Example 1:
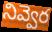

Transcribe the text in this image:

నివ్వెర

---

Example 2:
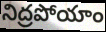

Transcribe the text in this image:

నిద్రపోయాం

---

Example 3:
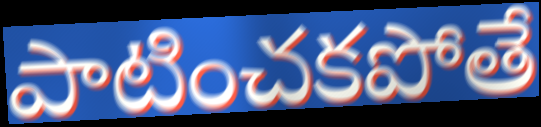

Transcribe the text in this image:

పాటించకపోతే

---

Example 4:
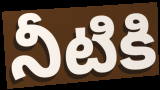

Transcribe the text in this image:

నీటికి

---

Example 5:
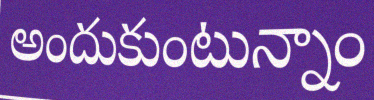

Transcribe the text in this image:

అందుకుంటున్నాం